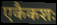
एकैकशः